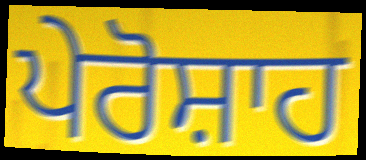
ਪੇਰੋਸ਼ਾਹ